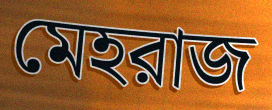
মেহরাজ